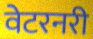
वेटरनरी